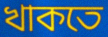
খাকতে